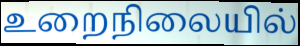
உறைநிலையில்